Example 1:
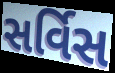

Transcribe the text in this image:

સર્વિસ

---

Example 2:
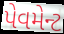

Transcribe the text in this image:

પેવમેન્ટ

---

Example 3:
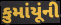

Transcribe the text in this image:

કુમાંયૂંની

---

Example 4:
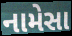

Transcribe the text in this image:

નામેસા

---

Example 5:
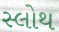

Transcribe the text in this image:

સ્લોથ